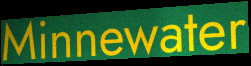
Minnewater